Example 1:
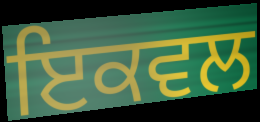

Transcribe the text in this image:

ਇਕਵਲ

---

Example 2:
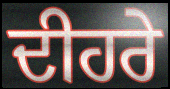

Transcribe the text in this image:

ਦੀਹਰੇ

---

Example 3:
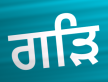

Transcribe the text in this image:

ਗੜਿ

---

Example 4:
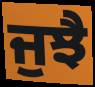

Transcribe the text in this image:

ਜੁਝੈ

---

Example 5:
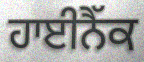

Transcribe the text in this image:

ਹਾਈਨੈੱਕ